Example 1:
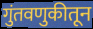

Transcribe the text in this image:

गुंतवणुकीतून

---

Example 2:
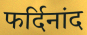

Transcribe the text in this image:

फर्दिनांद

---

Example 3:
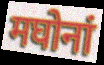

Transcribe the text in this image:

मघोनां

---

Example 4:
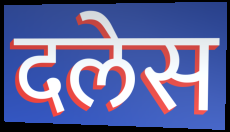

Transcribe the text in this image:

दलेस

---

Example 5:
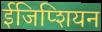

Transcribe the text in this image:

ईजिप्शियन